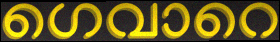
ഗെവാറെ